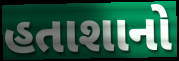
હતાશાનો